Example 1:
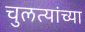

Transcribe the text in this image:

चुलत्यांच्या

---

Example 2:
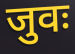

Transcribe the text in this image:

जुवः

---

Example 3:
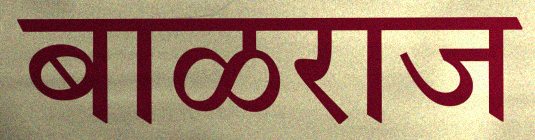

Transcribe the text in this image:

बाळराज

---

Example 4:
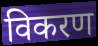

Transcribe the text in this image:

विकरण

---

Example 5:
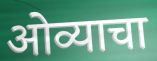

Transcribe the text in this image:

ओव्याचा